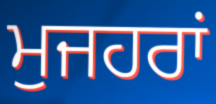
ਮੁਜਹਰਾਂ